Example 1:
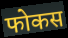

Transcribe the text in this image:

फोकस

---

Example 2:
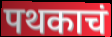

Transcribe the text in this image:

पथकाचं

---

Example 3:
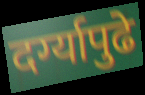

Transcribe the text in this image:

दर्ग्यापुढे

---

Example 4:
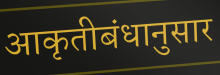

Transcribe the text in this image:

आकृतीबंधानुसार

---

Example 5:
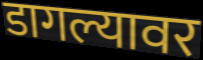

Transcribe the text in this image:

डागल्यावर